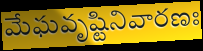
మేఘవృష్టినివారణః